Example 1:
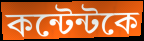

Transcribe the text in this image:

কন্টেন্টকে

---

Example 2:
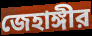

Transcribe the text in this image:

জেহাঙ্গীর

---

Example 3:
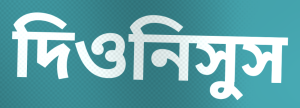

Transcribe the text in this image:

দিওনিসুস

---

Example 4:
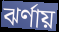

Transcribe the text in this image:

ঝর্ণায়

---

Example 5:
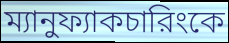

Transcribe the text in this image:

ম্যানুফ্যাকচারিংকে